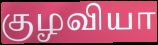
குழவியா